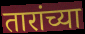
तारांच्या